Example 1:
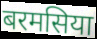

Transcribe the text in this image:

बरमसिया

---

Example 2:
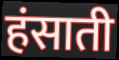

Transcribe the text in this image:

हंसाती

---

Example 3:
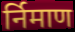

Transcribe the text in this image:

र्निमाण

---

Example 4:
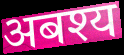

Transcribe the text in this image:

अबश्य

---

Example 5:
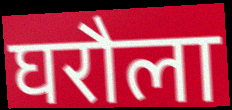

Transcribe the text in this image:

घरौला